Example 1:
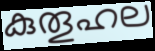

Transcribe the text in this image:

കുതൂഹല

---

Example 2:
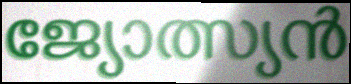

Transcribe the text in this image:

ജ്യോത്സ്യൻ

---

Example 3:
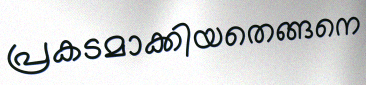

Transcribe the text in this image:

പ്രകടമാക്കിയതെങ്ങനെ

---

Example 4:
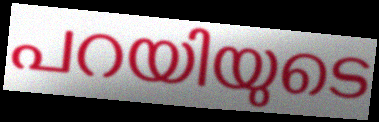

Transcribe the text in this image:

പറയിയുടെ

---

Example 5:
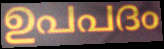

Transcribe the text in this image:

ഉപപദം